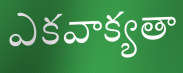
ఎకవాక్యతా